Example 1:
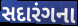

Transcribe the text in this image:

સદારંગના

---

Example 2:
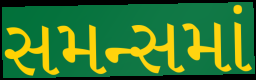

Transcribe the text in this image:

સમન્સમાં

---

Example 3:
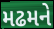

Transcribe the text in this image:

મઢમને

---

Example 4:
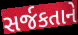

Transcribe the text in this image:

સર્જકતાને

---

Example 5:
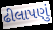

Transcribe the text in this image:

ઢીલાપણું